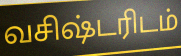
வசிஷ்டரிடம்